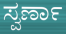
ಸ್ವರ್ಣಾ